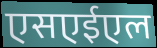
एसएईएल